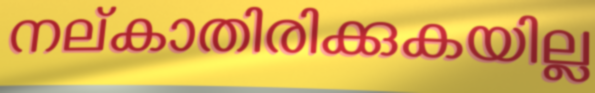
നല്‌കാതിരിക്കുകയില്ല